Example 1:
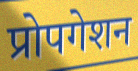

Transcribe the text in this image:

प्रोपगेशन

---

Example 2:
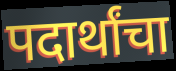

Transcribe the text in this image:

पदार्थांचा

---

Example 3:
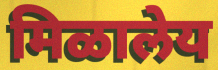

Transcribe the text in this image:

मिळालेय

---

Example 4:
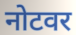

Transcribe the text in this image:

नोटवर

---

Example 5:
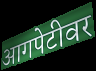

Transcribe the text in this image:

आगपेटीवर